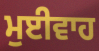
ਮੁਈਵਾਹ